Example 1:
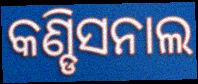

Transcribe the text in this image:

କଣ୍ଡିସନାଲ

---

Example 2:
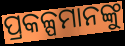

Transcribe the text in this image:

ପ୍ରକଳ୍ପମାନଙ୍କୁ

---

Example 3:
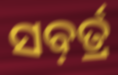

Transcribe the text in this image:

ସବ଼ର୍ତ୍ର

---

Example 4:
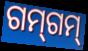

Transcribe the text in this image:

ଗମ୍‍ଗମ୍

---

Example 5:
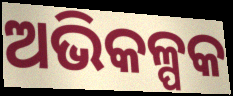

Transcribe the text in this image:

ଅଭିକଳ୍ପକ